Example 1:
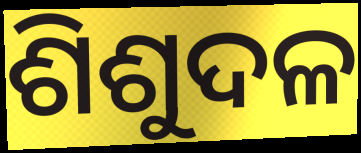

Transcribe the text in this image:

ଶିଶୁଦଳ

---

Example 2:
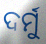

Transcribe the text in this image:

ଦର୍ମୁ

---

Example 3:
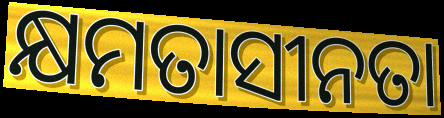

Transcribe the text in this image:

କ୍ଷମତାସୀନତା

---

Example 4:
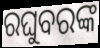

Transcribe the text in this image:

ରଘୁବରଙ୍କ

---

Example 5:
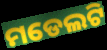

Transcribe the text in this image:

ମଡେଲଟି